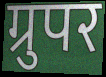
ग्रुपर